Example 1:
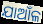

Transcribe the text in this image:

ଯାଆଁଳ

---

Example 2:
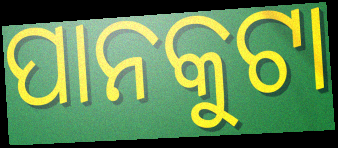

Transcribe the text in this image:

ପାନକୁଟା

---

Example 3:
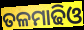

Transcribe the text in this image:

ତଳମାଢିଓ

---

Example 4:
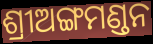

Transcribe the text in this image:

ଶ୍ରୀଅଙ୍ଗମଣ୍ଡନ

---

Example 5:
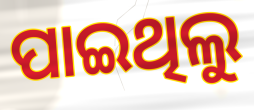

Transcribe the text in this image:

ପାଇଥିଲୁ